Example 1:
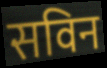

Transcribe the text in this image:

सविन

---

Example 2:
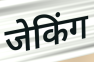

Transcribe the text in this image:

जेकिंग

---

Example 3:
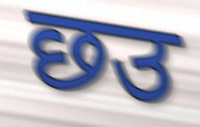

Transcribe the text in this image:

छउ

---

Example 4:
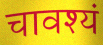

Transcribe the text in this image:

चावश्यं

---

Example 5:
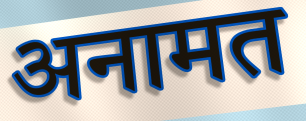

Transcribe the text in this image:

अनामत